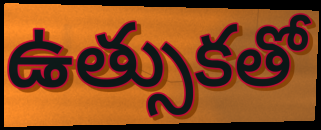
ఉత్సుకతో